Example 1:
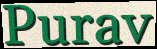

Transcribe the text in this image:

Purav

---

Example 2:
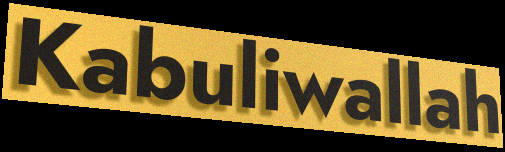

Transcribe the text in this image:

Kabuliwallah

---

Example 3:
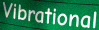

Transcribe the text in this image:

Vibrational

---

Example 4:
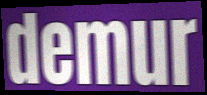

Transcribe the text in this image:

demur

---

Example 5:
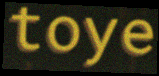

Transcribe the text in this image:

toye